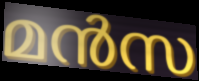
മൻസ